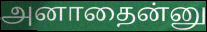
அனாதைன்னு